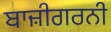
ਬਾਜ਼ੀਗਰਨੀ